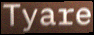
Tyare